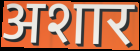
अशार